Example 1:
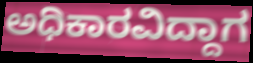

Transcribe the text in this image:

ಅಧಿಕಾರವಿದ್ದಾಗ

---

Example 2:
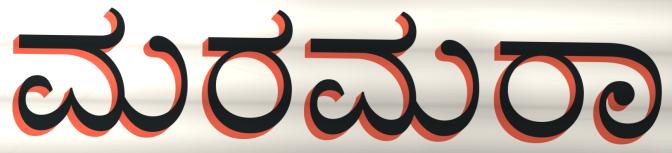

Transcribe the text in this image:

ಮರಮರಾ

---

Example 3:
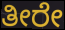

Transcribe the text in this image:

ತೀರೇ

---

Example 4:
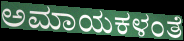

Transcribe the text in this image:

ಅಮಾಯಕಳಂತೆ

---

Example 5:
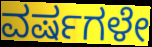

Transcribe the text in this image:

ವರ್ಷಗಳೇ